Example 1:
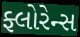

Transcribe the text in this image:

ફ્લોરેન્સ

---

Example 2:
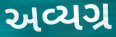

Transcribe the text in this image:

અવ્યગ્ર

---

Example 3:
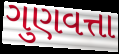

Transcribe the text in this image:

ગુણવત્તા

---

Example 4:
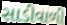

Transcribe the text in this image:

સાડીવાળી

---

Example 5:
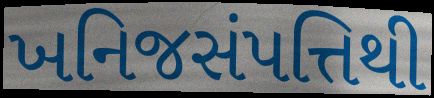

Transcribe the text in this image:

ખનિજસંપત્તિથી